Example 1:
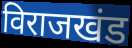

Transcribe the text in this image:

विराजखंड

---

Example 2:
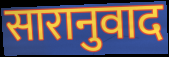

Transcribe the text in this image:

सारानुवाद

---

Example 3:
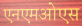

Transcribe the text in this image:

एनएमओएस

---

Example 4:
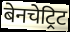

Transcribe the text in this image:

बेनचेट्रिट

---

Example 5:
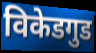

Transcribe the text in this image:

विकेडगुड